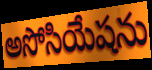
అసోసియేషను